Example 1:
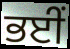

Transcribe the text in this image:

ਭਈਂ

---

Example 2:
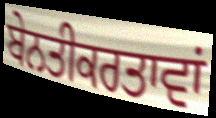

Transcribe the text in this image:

ਬੇਨਤੀਕਰਤਾਵਾਂ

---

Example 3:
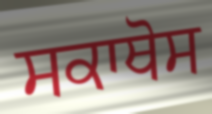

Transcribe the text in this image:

ਸਕਾਥੋਸ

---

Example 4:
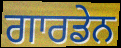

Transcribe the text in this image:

ਗਾਰਡੇਨ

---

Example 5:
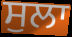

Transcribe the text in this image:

ਸੁਲਾ